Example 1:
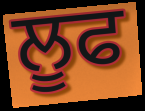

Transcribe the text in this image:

ਲੂਫ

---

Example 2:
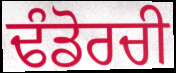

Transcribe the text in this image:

ਢੰਡੋਰਚੀ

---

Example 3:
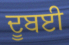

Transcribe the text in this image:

ਦੂਬਈ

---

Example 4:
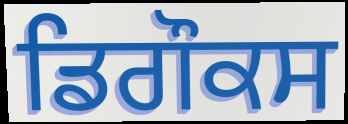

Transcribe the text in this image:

ਡਿਗੌਕਸ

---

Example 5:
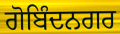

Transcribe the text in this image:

ਗੋਬਿੰਦਨਗਰ